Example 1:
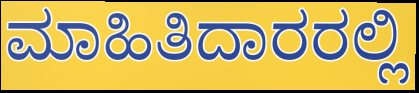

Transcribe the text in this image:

ಮಾಹಿತಿದಾರರಲ್ಲಿ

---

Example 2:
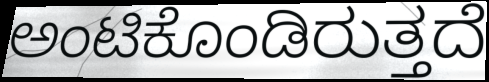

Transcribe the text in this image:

ಅಂಟಿಕೊಂಡಿರುತ್ತದೆ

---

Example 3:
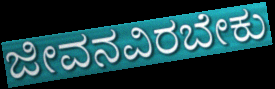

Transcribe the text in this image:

ಜೀವನವಿರಬೇಕು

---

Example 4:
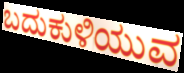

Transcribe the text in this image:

ಬದುಕುಳಿಯುವ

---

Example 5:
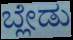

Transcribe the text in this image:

ಬ್ಲೇಡು